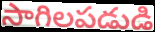
సాగిలపడుడి